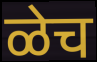
ळेच